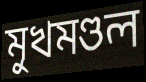
মুখমণ্ডল